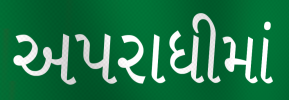
અપરાધીમાં